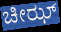
ಚೀಝ್